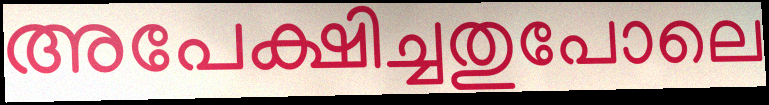
അപേക്ഷിച്ചതുപോലെ